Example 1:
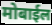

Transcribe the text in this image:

मोबाईल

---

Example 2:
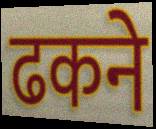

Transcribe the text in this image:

ढकने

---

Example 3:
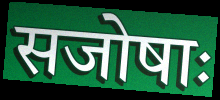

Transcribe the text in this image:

सजोषाः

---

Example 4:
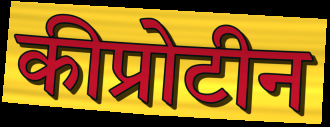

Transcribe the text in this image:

कीप्रोटीन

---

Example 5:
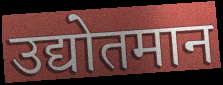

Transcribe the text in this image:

उद्योतमान